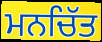
ਮਨਚਿੱਤ